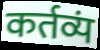
कर्तव्यं